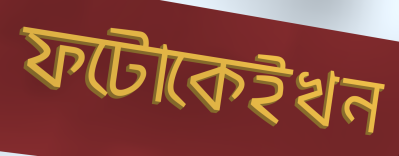
ফটোকেইখন